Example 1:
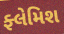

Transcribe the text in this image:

ફ્લેમિશ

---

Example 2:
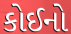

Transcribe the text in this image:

કોઈનો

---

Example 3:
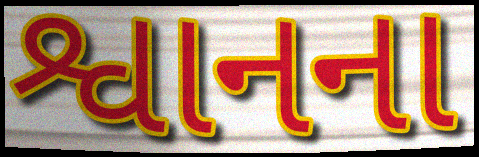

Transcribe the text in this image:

શ્વાનના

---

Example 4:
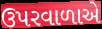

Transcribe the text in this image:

ઉપરવાળાએ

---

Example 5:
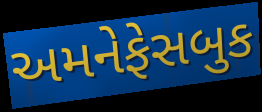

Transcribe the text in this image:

અમનેફેસબુક